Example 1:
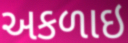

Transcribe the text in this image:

અકળાઇ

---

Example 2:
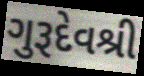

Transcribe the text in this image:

ગુરૂદેવશ્રી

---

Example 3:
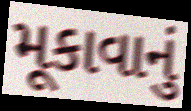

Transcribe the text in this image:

મૂકાવાનું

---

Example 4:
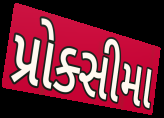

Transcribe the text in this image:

પ્રોક્સીમા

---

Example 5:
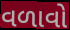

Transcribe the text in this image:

વળાવો